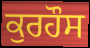
ਕੁਰਹੌਸ